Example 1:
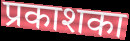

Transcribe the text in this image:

प्रकाशका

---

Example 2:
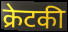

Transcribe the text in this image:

क्रेटकी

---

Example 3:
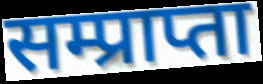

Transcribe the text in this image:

सम्प्राप्ता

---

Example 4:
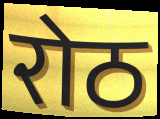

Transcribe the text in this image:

रोठ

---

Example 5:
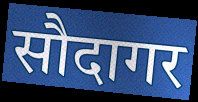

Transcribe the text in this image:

सौदागर